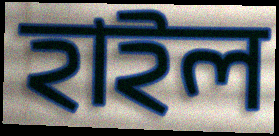
হাইল